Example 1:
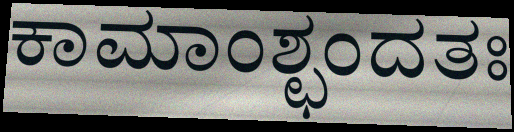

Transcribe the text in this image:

ಕಾಮಾಂಶ್ಛಂದತಃ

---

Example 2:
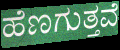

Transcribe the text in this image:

ಹೆಣಗುತ್ತವೆ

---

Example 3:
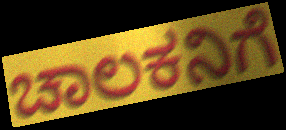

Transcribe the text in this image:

ಚಾಲಕನಿಗೆ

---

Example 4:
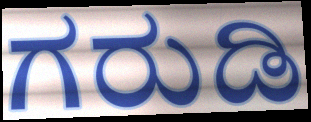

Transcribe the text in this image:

ಗರುಡಿ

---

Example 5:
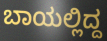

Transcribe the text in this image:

ಬಾಯಲ್ಲಿದ್ದ